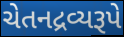
ચેતનદ્રવ્યરૂપે